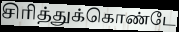
சிரித்துக்கொண்டே